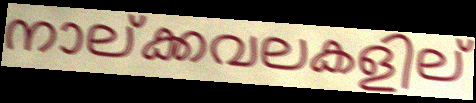
നാല്ക്കവലകളില്